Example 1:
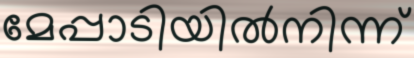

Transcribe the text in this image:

മേപ്പാടിയിൽനിന്ന്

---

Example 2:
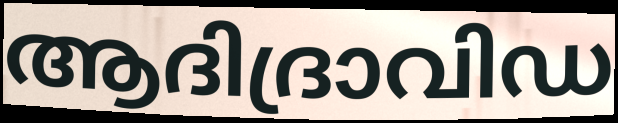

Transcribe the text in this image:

ആദിദ്രാവിഡ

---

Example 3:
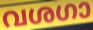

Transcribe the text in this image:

വശഗാ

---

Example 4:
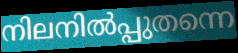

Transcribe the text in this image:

നിലനിൽപ്പുതന്നെ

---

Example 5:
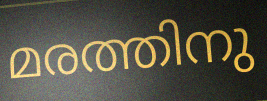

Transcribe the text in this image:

മരത്തിനു